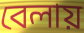
বেলায়